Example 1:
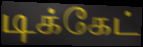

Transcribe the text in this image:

டிக்கேட்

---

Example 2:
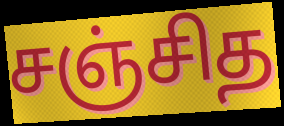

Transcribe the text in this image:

சஞ்சித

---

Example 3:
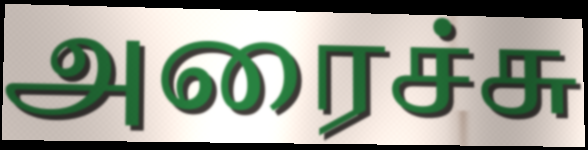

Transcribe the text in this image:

அரைச்சு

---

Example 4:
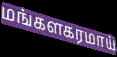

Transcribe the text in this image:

மங்களகரமாய்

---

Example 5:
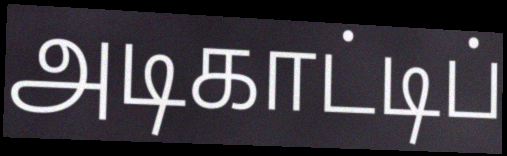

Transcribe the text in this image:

அடிகாட்டிப்